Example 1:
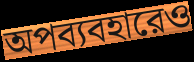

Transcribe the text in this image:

অপব্যবহারেও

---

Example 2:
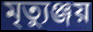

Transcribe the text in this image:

মৃত্যুঞ্জয়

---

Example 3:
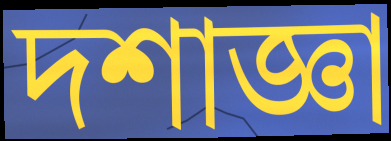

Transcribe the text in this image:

দশাজ্ঞা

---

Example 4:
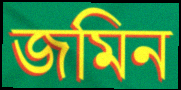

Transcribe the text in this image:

জমিন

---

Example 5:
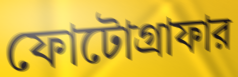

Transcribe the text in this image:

ফোটোগ্রাফার